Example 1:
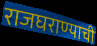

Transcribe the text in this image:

राजघराण्याची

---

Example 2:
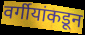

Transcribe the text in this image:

वर्गीयांकडून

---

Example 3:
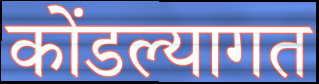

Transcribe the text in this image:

कोंडल्यागत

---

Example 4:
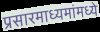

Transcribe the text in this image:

प्रसारमाध्यमांमध्ये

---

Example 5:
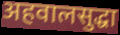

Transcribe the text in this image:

अहवालसुद्धा